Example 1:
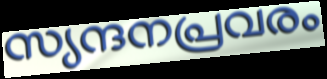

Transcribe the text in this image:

സ്യന്ദനപ്രവരം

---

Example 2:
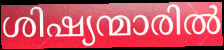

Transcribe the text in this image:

ശിഷ്യന്മാരിൽ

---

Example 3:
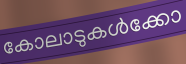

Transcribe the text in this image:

കോലാടുകൾക്കോ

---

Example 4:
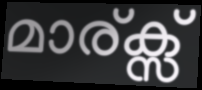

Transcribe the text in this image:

മാര്ക്സ്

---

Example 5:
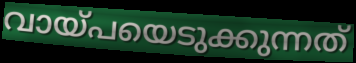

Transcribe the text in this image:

വായ്പയെടുക്കുന്നത്